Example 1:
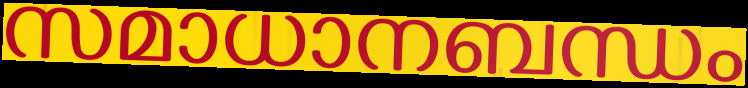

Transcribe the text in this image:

സമാധാനബന്ധം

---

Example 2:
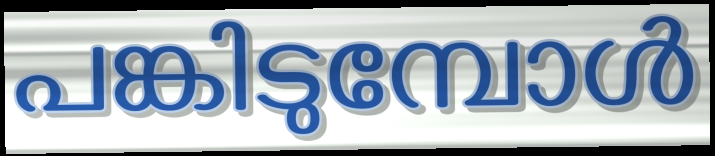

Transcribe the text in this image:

പങ്കിടുമ്പോൾ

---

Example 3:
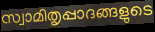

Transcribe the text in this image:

സ്വാമിതൃപ്പാദങ്ങളുടെ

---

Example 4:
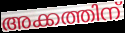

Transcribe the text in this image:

അക്കത്തിന്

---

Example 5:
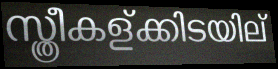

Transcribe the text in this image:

സ്ത്രീകള്ക്കിടയില്